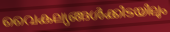
വൈകല്യങ്ങൾക്കിടയിലും